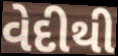
વેદીથી